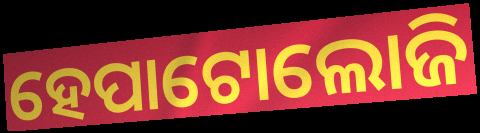
ହେପାଟୋଲୋଜି